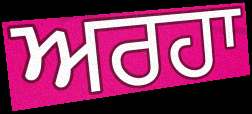
ਅਰਹਾ